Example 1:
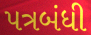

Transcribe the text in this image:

પત્રબંધી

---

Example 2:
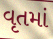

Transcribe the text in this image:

વૃતમાં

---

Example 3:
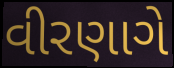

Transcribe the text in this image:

વીરણાગે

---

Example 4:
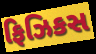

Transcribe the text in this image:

ફિઝિકસ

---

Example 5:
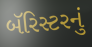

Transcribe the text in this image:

બૅરિસ્ટરનું